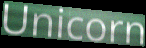
Unicorn